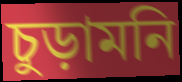
চুড়ামনি